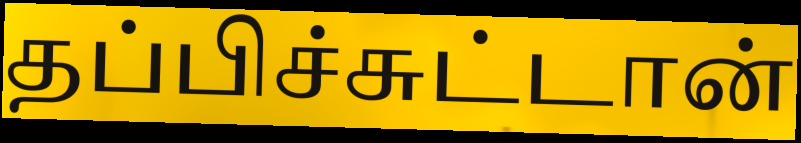
தப்பிச்சுட்டான்